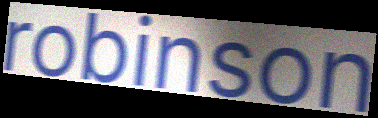
robinson